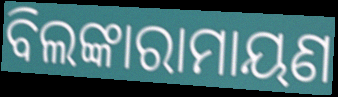
ବିଲଙ୍କାରାମାୟଣ